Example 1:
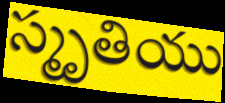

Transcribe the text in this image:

స్మృతియు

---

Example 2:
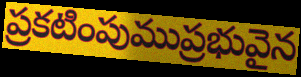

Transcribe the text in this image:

ప్రకటింపుముప్రభువైన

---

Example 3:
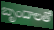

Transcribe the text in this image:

బృందాలతో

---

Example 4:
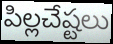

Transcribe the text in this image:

పిల్లచేష్టలు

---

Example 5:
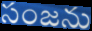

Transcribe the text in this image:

సంజను